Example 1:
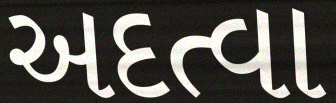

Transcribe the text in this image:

અદત્વા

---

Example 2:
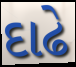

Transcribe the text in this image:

દાઢે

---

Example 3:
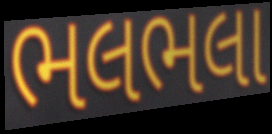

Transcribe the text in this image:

ભલભલા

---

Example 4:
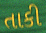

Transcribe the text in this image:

તાકી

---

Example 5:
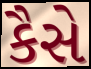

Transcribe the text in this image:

કૈસે